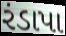
રંડાપા